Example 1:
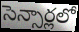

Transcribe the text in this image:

సెన్సార్లలో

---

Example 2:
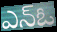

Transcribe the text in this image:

ఎన్ఓ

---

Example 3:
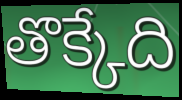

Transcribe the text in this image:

తొక్కేది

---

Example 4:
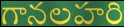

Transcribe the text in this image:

గానలహరి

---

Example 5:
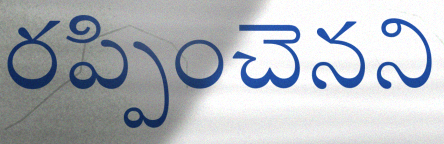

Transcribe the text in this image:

రప్పించెనని